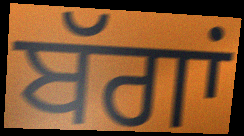
ਬੱਗਾਂ